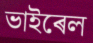
ভাইৰেল